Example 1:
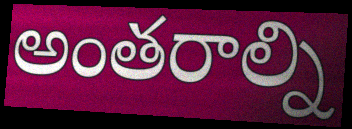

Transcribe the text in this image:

అంతరాల్ని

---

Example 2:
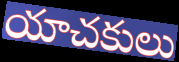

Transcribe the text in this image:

యాచకులు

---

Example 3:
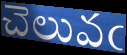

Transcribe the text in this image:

చెలువఁ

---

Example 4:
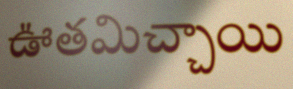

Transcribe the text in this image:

ఊతమిచ్చాయి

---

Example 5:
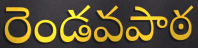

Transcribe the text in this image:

రెండవపాఠ